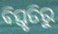
ବିସ୍ତୃତିରୁ